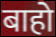
बाहो